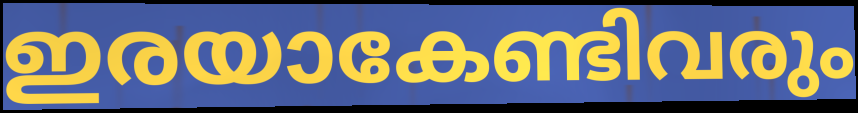
ഇരയാകേണ്ടിവരും